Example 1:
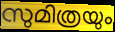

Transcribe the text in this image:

സുമിത്രയും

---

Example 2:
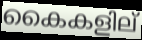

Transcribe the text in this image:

കൈകളില്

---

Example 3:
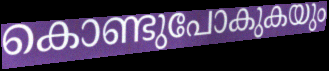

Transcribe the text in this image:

കൊണ്ടുപോകുകയും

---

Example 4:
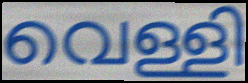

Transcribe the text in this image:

വെള്ളി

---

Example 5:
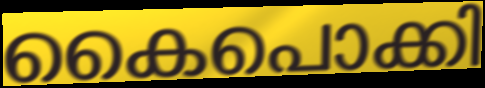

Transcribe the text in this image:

കൈപൊക്കി